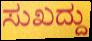
ಸುಖದ್ದು